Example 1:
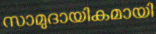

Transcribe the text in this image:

സാമുദായികമായി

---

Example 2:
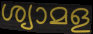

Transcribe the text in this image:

ശ്യാമള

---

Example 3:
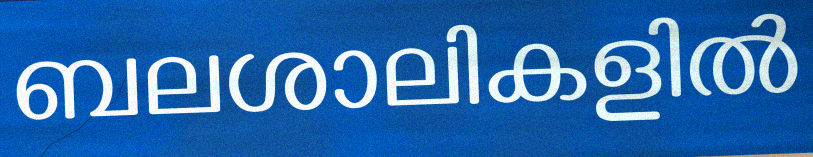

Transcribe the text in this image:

ബലശാലികളിൽ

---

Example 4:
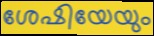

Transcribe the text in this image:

ശേഷിയേയും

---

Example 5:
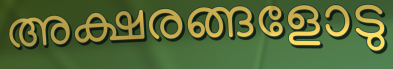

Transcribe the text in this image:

അക്ഷരങ്ങളോടു